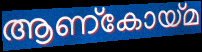
ആണ്കോയ്മ